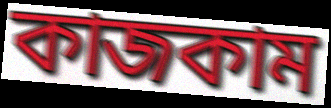
কাজকাম